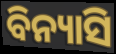
ବିନ୍ୟାସି